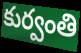
కుర్వంతి